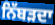
ਨਿੱਬੜਦਾ